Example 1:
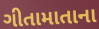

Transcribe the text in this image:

ગીતામાતાના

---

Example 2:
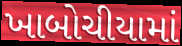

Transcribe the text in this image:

ખાબોચીયામાં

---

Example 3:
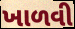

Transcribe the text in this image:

ખાળવી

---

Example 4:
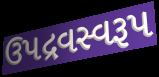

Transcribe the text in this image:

ઉપદ્રવસ્વરૂપ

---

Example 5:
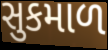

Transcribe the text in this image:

સુકમાળ